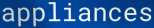
appliances